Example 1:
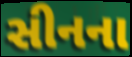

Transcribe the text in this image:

સીનના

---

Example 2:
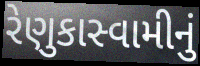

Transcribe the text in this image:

રેણુકાસ્વામીનું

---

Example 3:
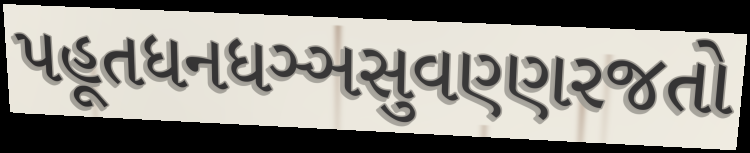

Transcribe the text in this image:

પહૂતધનધઞ્ઞસુવણ્ણરજતો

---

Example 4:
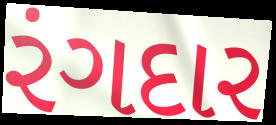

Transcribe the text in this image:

રંગદાર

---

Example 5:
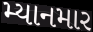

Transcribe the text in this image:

મ્યાનમાર